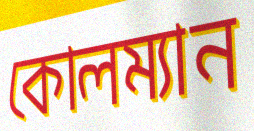
কোলম্যান